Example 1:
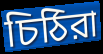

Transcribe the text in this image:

চিঠিরা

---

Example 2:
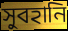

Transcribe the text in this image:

সুবহানি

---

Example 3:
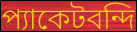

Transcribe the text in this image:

প্যাকেটবন্দি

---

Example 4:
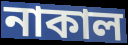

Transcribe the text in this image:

নাকাল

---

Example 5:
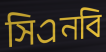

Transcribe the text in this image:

সিএনবি